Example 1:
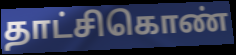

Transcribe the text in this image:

தாட்சிகொண்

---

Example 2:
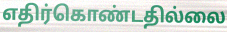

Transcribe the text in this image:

எதிர்கொண்டதில்லை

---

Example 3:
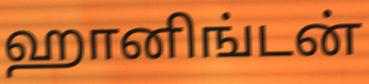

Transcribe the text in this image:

ஹானிங்டன்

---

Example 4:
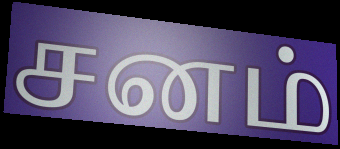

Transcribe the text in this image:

சனம்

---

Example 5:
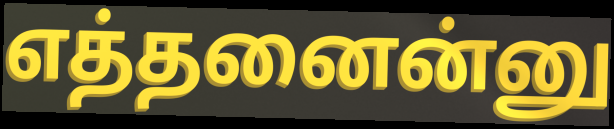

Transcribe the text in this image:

எத்தனைன்னு